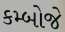
કમ્બોજે